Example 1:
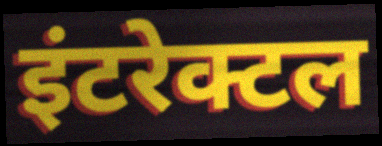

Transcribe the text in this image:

इंटरेक्टल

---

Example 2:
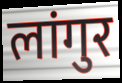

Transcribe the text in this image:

लांगुर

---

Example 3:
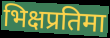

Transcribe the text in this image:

भिक्षप्रतिमा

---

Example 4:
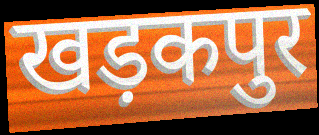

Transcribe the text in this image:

खड़कपुर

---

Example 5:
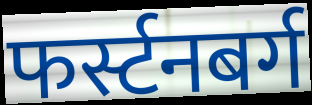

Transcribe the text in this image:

फर्स्टनबर्ग